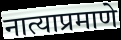
नात्याप्रमाणे